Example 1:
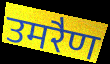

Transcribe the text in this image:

उमरैण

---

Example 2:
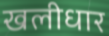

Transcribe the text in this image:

खलीधार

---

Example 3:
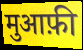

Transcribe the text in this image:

मुआफ़ी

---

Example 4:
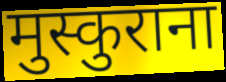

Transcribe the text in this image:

मुस्कुराना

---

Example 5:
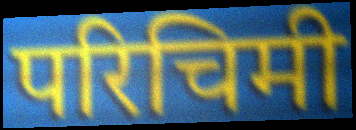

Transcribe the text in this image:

परिचिमी